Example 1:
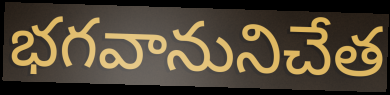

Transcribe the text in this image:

భగవానునిచేత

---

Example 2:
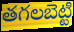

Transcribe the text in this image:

తగలబెట్టి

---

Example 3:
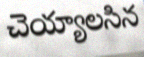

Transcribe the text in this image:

చెయ్యాలసిన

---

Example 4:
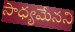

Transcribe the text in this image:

సాధ్యమేనని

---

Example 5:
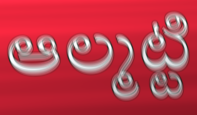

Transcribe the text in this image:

ఆల్మట్టి